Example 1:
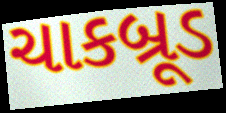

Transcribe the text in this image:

ચાકબ્રૂડ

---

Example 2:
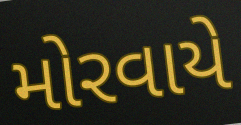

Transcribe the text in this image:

મોરવાયે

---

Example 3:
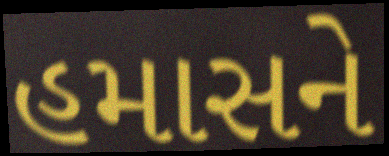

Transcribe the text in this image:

હમાસને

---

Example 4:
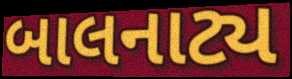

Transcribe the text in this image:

બાલનાટ્ય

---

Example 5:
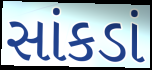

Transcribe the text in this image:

સાંકડાં